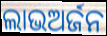
ଲାଭଅର୍ଜନ